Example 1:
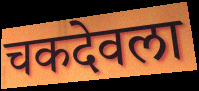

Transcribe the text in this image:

चकदेवला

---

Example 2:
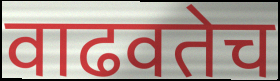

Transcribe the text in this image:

वाढवतेच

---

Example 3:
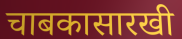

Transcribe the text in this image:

चाबकासारखी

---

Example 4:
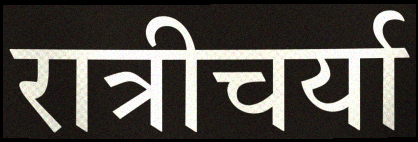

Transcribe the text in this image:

रात्रीचर्या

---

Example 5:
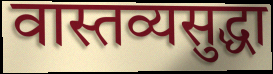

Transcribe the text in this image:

वास्तव्यसुद्धा